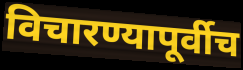
विचारण्यापूर्वीच